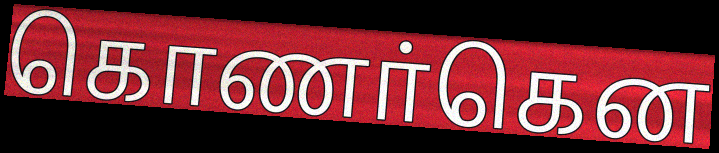
கொணர்கென